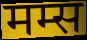
मम्स